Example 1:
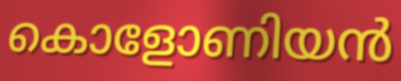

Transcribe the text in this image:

കൊളോണിയൻ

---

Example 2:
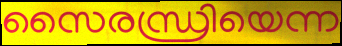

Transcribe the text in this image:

സൈരന്ധ്രിയെന്ന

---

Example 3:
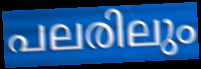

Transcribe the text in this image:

പലരിലും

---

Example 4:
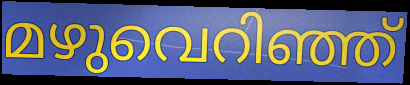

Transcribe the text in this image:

മഴുവെറിഞ്ഞ്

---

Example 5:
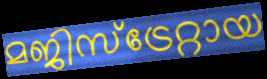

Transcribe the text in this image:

മജിസ്ട്രേറ്റായ